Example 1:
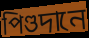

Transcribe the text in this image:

পিণ্ডদানে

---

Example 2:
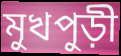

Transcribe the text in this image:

মুখপুড়ী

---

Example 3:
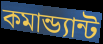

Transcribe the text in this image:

কমান্ড্যান্ট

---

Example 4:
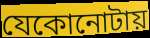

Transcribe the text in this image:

যেকোনোটায়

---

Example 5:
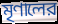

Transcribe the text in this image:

মৃণালের